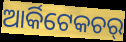
ଆର୍କିଟେକଚର୍